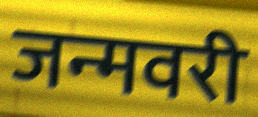
जन्मवरी